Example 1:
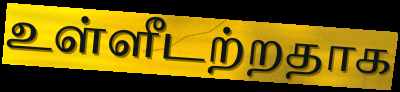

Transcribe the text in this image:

உள்ளீடற்றதாக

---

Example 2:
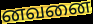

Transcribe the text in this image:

னவனை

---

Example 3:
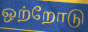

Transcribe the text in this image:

ஒற்றோடு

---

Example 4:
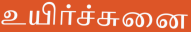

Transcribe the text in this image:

உயிர்ச்சுனை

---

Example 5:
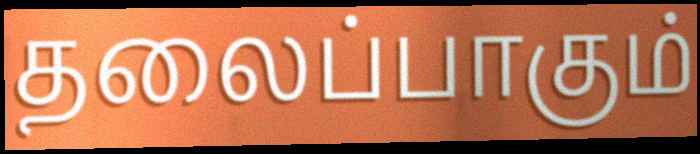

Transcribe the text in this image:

தலைப்பாகும்